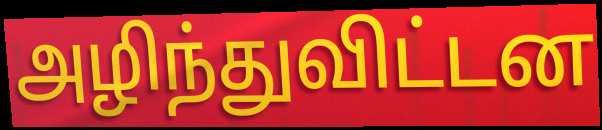
அழிந்துவிட்டன